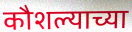
कौशल्याच्या